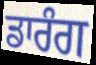
ਡਾਰੰਗ